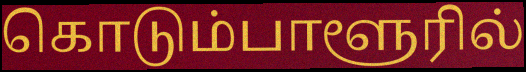
கொடும்பாளூரில்